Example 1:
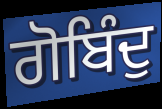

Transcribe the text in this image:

ਗੋਬਿੰਦੁ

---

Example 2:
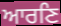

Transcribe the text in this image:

ਆਰਣਿ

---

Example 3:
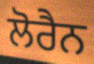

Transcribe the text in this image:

ਲੋਰੈਨ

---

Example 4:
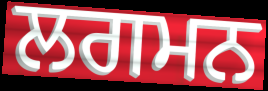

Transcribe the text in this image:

ਲਗਮਨ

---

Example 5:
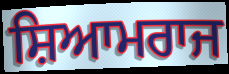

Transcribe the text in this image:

ਸ਼ਿਆਮਰਾਜ